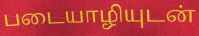
படையாழியுடன்